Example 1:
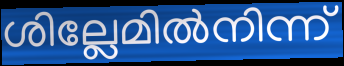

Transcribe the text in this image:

ശില്ലേമിൽനിന്ന്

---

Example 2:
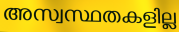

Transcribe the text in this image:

അസ്വസ്ഥതകളില്ല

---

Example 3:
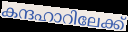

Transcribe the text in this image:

കന്ദഹാറിലേക്ക്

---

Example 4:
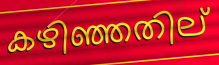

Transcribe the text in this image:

കഴിഞ്ഞതില്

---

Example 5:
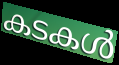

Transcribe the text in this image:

കടകൾ